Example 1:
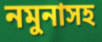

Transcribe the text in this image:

নমুনাসহ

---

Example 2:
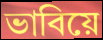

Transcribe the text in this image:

ভাবিয়ে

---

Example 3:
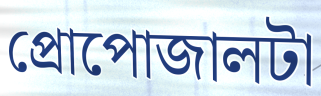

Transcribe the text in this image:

প্রোপোজালটা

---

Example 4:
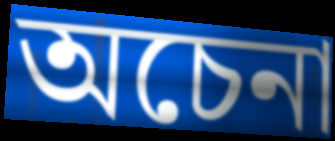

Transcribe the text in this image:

অচেনা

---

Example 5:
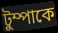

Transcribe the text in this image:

টুম্পাকে